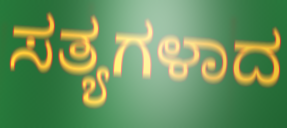
ಸತ್ಯಗಳಾದ